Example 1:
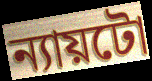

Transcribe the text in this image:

ন্যায়টো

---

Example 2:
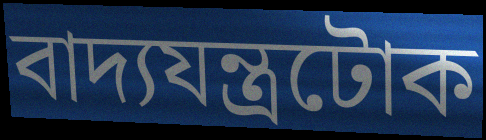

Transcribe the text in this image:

বাদ্যযন্ত্ৰটোক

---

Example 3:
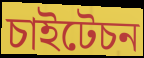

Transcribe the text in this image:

চাইটেচন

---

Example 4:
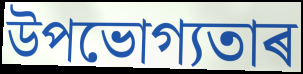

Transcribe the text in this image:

উপভোগ্যতাৰ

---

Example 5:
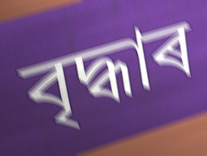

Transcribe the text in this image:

বৃদ্ধাৰ